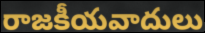
రాజకీయవాదులు